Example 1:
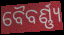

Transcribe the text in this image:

ବୈବର୍ଣ୍ଣ୍ୟ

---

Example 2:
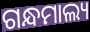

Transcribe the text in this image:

ଗନ୍ଧମାଲ୍ୟ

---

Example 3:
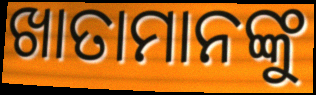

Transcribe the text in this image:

ଖାତାମାନଙ୍କୁ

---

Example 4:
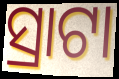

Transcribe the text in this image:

ସ୍ରାଟା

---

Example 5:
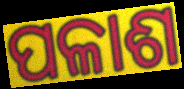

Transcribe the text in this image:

ପଳାଶ